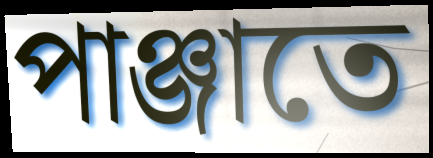
পাঞ্জাতে